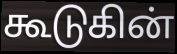
கூடுகின்